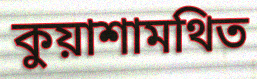
কুয়াশামথিত